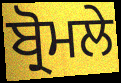
ਬ੍ਰੋਮਲੇ